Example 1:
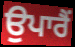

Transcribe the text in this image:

ਉਪਾਰੈਂ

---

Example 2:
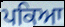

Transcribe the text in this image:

ਪਕਿਆ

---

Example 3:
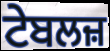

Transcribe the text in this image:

ਟੇਬਲਜ਼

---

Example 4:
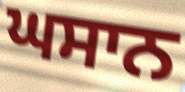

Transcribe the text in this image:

ਘਸਾਨ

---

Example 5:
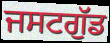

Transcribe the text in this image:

ਜਸਟਗੁੱਡ